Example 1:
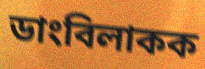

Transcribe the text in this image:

ডাংবিলাকক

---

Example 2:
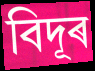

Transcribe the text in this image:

বিদূৰ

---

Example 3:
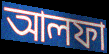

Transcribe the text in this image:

আলফা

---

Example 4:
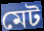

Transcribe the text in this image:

মেট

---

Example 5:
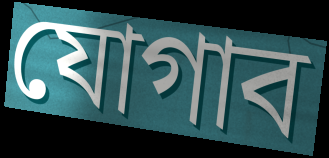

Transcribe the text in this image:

যোগাব